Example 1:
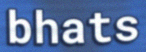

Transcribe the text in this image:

bhats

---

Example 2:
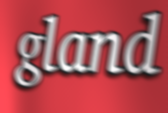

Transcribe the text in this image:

gland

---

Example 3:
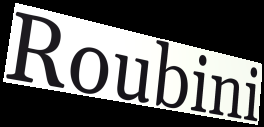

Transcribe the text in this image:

Roubini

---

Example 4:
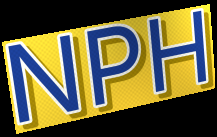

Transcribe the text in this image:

NPH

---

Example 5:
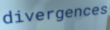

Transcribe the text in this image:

divergences